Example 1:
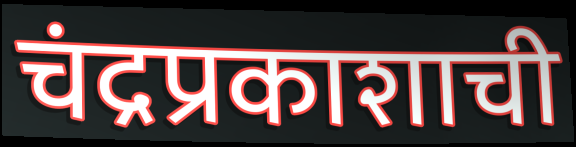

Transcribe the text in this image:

चंद्रप्रकाशाची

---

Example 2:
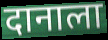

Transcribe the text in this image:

दानाला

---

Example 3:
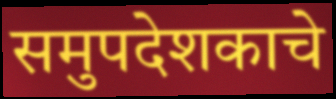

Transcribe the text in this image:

समुपदेशकाचे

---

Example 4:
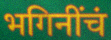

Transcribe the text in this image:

भगिनींचं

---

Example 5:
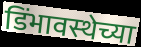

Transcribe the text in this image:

डिंभावस्थेच्या